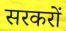
सरकरों